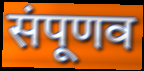
संपूणव